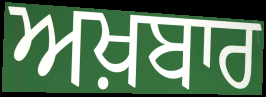
ਅਖ਼ਬਾਰ